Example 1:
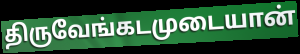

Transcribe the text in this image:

திருவேங்கடமுடையான்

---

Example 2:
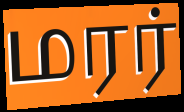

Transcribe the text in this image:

மரர்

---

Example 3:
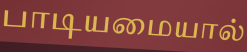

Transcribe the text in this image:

பாடியமையால்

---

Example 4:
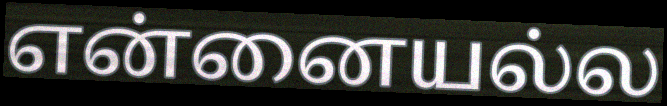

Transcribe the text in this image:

என்னையல்ல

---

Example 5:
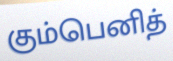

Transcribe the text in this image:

கும்பெனித்